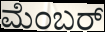
ಮೆಂಬರ್